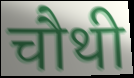
चौथी